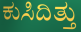
ಕುಸಿದಿತ್ತು